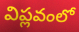
విప్లవంలో